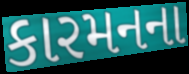
કારમનના